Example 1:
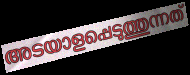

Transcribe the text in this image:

അടയാളപ്പെടുത്തുന്നത്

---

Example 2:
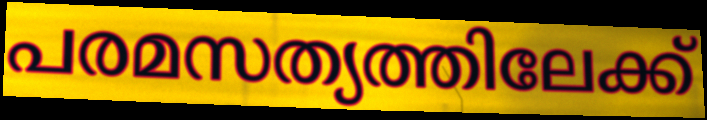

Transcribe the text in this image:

പരമസത്യത്തിലേക്ക്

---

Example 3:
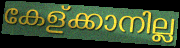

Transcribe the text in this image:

കേള്ക്കാനില്ല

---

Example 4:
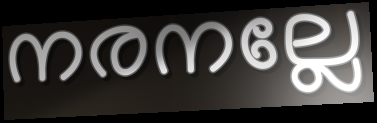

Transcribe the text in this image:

നരനല്ലേ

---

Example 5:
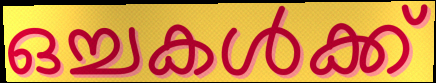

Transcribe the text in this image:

ഒച്ചകൾക്ക്